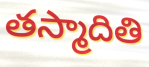
తస్మాదితి